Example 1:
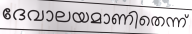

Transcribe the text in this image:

ദേവാലയമാണിതെന്ന്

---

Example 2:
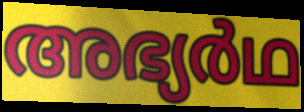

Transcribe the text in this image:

അഭ്യർഥ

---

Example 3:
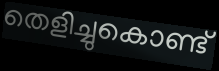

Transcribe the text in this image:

തെളിച്ചുകൊണ്ട്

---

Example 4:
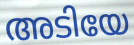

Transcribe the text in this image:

അടിയേ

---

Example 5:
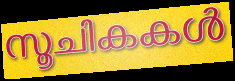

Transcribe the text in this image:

സൂചികകൾ